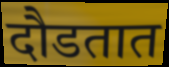
दौडतात